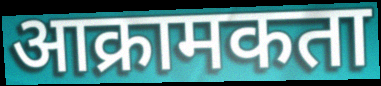
आक्रामकता